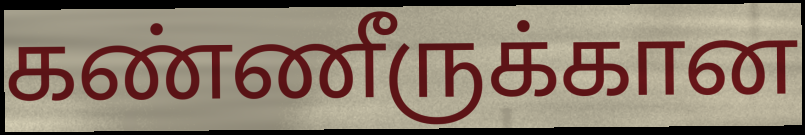
கண்ணீருக்கான